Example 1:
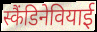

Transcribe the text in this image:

स्कैंडिनेवियाई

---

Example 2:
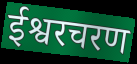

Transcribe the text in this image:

ईश्वरचरण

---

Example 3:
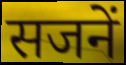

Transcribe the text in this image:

सजनें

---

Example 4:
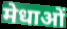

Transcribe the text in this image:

मेधाओं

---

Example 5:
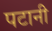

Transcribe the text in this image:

पटानी